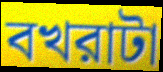
বখরাটা